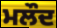
ਮਲੌਦ